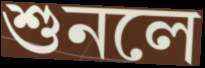
শুনলে